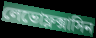
লেভোফ্লক্সাসিন